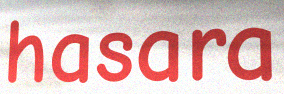
hasara